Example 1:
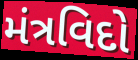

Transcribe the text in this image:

મંત્રવિદો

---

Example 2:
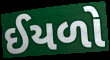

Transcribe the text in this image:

ઈયળો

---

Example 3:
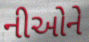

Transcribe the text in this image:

નીઓને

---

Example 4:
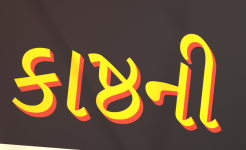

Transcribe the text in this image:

કાષ્ઠની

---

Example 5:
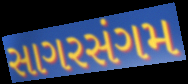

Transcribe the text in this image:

સાગરસંગમ